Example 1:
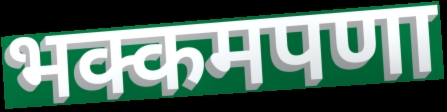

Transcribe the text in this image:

भक्कमपणा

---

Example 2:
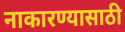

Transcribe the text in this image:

नाकारण्यासाठी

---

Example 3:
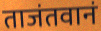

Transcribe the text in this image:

ताजंतवानं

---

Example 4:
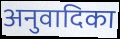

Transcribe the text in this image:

अनुवादिका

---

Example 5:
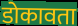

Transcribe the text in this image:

डोकावता